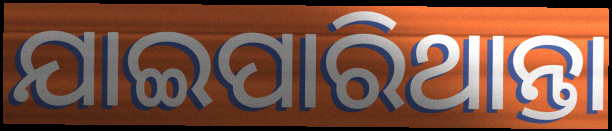
ଯାଇପାରିଥାନ୍ତା